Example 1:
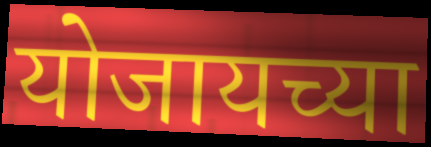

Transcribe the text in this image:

योजायच्या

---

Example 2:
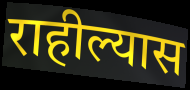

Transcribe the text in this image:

राहील्यास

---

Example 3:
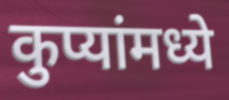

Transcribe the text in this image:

कुप्यांमध्ये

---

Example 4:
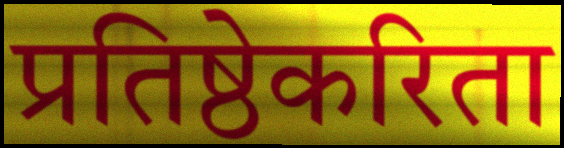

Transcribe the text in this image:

प्रतिष्ठेकरिता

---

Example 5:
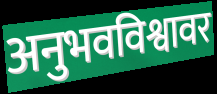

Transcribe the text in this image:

अनुभवविश्वावर